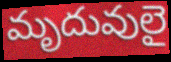
మృదువులై